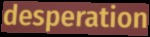
desperation